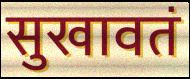
सुखावतं